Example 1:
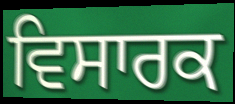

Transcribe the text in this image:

ਵਿਸਾਰਕ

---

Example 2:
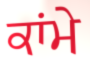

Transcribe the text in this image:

ਕਾਂਮੇ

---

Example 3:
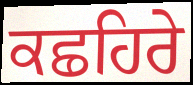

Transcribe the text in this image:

ਕਛਹਿਰੇ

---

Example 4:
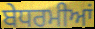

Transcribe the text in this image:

ਬੇਧਰਮੀਆਂ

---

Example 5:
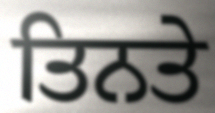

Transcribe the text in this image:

ਤਿਨਤੇ